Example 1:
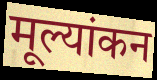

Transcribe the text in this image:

मूल्‍यांकन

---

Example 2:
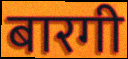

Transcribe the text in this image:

बारगी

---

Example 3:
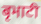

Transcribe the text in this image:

बृभाटी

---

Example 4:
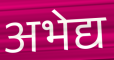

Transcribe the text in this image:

अभेद्य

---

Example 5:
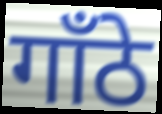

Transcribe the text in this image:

गाँठे